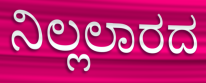
ನಿಲ್ಲಲಾರದ